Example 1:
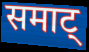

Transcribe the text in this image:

समाट्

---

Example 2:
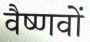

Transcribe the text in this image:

वैष्णवों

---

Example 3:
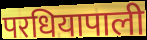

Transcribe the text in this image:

परधियापाली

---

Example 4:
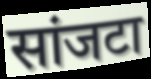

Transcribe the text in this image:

सांजटा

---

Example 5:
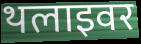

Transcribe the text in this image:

थलाइवर